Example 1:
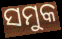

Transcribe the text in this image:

ସମୁକ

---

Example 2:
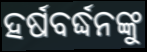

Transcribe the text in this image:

ହର୍ଷବର୍ଦ୍ଧନଙ୍କୁ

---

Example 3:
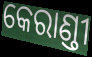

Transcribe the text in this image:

କେରାଣ୍ଡୀ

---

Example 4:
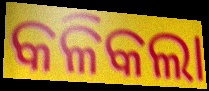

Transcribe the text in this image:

କଳିକଲା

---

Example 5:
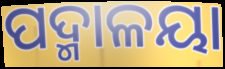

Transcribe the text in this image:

ପଦ୍ମାଳୟା